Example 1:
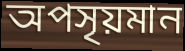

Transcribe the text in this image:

অপসৃয়মান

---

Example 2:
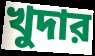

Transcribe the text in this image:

খুদার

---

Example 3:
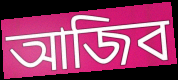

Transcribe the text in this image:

আজিব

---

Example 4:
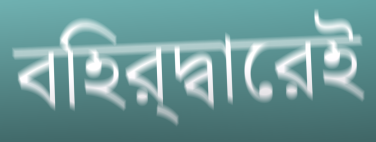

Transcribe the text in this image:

বহির্‌দ্বারেই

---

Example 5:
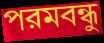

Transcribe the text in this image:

পরমবন্ধু